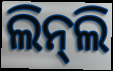
ଲିନ୍‌ଲି